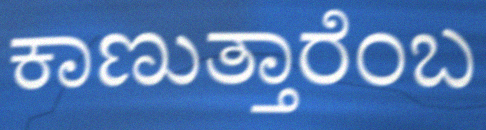
ಕಾಣುತ್ತಾರೆಂಬ